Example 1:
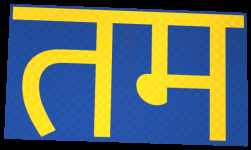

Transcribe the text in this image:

तम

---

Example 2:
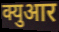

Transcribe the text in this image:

क्युआर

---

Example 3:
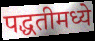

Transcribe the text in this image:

पद्धतीमध्ये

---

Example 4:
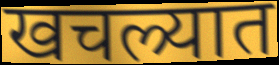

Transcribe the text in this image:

खचल्यात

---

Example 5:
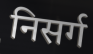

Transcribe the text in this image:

निसर्ग